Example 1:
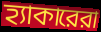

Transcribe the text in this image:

হ্যাকারেরা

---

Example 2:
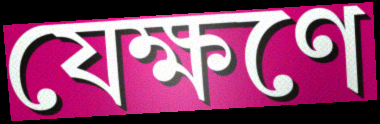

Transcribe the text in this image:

যেক্ষণে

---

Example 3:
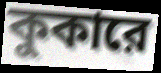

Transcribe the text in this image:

কুকারে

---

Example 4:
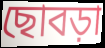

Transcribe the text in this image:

ছোবড়া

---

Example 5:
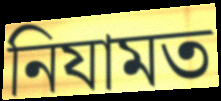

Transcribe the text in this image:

নিযামত